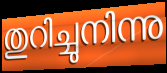
തുറിച്ചുനിന്നു